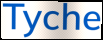
Tyche